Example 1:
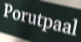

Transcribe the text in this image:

Porutpaal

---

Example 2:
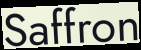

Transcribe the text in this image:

Saffron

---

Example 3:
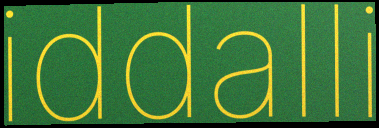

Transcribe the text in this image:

iddalli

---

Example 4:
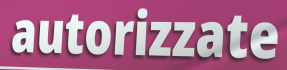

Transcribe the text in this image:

autorizzate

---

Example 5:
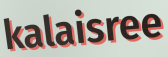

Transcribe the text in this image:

kalaisree